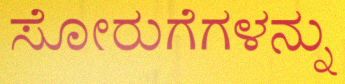
ಸೋರುಗೆಗಳನ್ನು